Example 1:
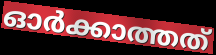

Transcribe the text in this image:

ഓർക്കാത്തത്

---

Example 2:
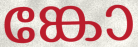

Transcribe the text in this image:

ങ്കോ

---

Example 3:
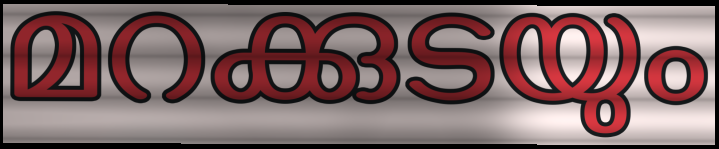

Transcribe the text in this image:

മറക്കുടയും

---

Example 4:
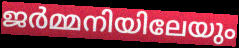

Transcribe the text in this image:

ജർമ്മനിയിലേയും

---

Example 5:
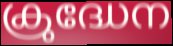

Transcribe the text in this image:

ക്രുദ്ധേന